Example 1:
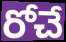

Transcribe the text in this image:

రోచే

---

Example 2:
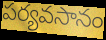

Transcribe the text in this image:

పర్యవసానం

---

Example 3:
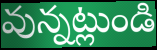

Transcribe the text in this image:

వున్నట్లుండి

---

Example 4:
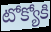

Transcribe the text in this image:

టోక్యోకి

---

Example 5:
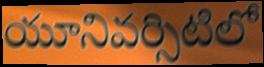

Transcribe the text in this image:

యూనివర్సిటిలో